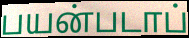
பயன்படாப்